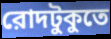
রোদটুকুতে